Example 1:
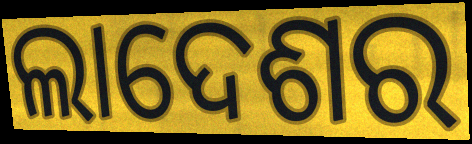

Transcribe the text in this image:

ଲାଦେଶର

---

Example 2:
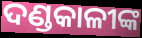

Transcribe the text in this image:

ଦଣ୍ଡକାଳୀଙ୍କ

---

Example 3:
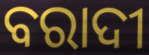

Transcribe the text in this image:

ବରାଦୀ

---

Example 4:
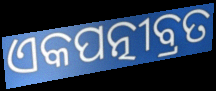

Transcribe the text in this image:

ଏକପତ୍ନୀବ୍ରତ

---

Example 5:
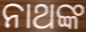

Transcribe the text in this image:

ନାଥଙ୍କ